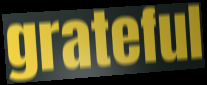
grateful